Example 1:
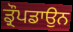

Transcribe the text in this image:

ਡ੍ਰੌਪਡਾਉਨ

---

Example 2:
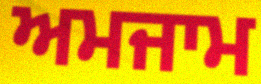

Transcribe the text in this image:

ਅਮਜਾਮ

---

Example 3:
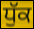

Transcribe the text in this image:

ਧੁੱਕ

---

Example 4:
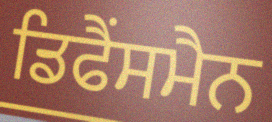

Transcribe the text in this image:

ਡਿਫੈਂਸਮੈਨ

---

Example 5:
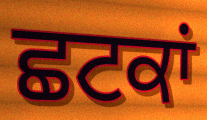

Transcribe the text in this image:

ਛਟਕਾਂ